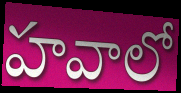
హవాలో